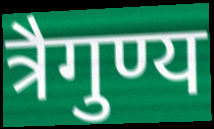
त्रैगुण्य